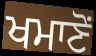
ਖਮਾਣੋਂ